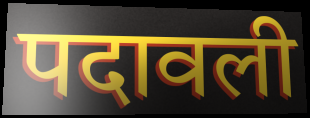
पदावली